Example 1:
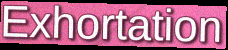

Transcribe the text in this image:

Exhortation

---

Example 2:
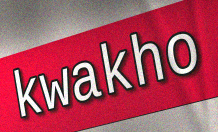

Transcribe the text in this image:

kwakho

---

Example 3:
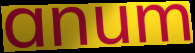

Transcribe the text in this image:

anum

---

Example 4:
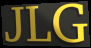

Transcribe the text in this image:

JLG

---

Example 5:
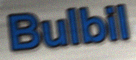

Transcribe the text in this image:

Bulbil